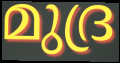
മുദ്ര